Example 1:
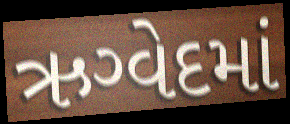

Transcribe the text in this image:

ઋગ્વેદમાં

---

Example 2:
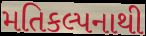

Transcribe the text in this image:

મતિકલ્પનાથી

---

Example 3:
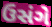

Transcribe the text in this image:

ઉસંગે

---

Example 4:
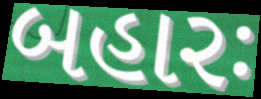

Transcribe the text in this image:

બહારઃ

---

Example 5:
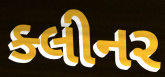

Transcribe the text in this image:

ક્લીનર